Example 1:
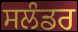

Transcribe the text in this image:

ਸਲੰਡਰ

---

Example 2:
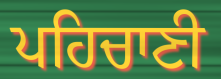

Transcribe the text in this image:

ਪਹਿਚਾਣੀ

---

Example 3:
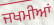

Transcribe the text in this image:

ਜਖਮੀਆਂ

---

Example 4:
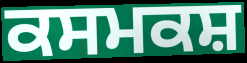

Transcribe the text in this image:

ਕਸਮਕਸ਼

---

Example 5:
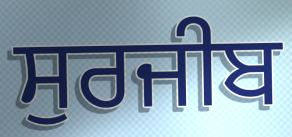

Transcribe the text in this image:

ਸੁਰਜੀਬ